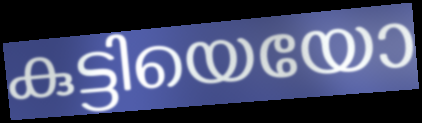
കുട്ടിയെയോ